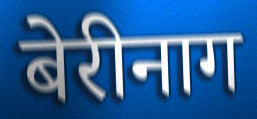
बेरीनाग